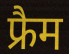
फ्रैम